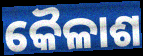
କୈଳାଶ